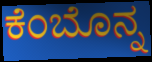
ಕೆಂಬೊನ್ನ